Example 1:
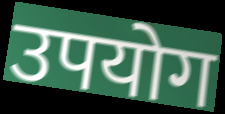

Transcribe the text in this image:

उपयोग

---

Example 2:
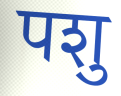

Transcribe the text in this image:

पशु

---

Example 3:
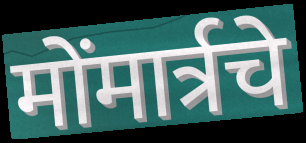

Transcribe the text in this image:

मोंमार्त्रचे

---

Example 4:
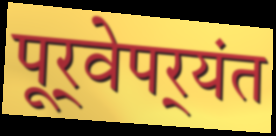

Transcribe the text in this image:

पूर्वेपर्यंत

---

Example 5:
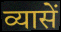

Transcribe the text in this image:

व्यासें